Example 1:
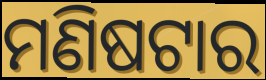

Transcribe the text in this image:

ମଣିଷଟାର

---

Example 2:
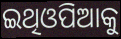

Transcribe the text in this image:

ଇଥିଓପିଆକୁ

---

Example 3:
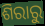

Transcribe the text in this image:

ଶିରାରୁ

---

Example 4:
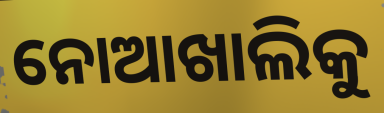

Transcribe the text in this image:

ନୋଆଖାଲିକୁ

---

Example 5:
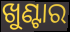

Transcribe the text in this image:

ଖୁଣ୍ଟାର